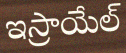
ఇస్రాయేల్